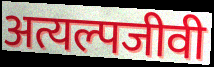
अत्यल्पजीवी